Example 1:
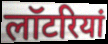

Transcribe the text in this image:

लॉटरियां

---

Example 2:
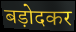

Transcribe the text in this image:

बड़ोदकर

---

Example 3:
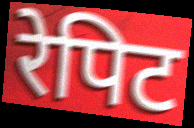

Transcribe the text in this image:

रेपिट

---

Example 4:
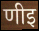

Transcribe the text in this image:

णीइ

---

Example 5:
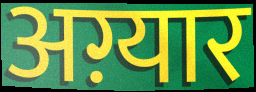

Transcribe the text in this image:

अग़्यार